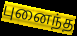
புனைந்த